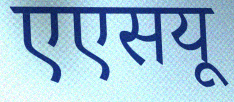
एएसयू